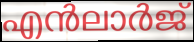
എൻലാർജ്